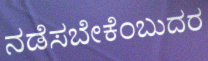
ನಡೆಸಬೇಕೆಂಬುದರ